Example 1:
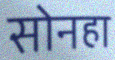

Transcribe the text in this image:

सोनहा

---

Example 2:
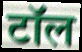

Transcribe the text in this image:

टॉल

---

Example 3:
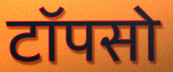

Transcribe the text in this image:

टॉपसो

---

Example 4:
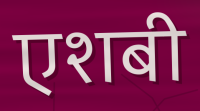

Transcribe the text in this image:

एशबी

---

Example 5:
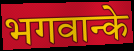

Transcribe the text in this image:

भगवान्के